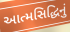
આત્મસિદ્ધિનું